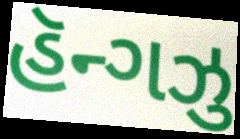
હૅન્ગઝુ